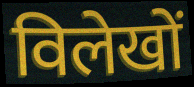
विलेखों